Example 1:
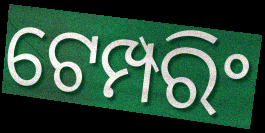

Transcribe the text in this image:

ଟେମ୍ପରିଂ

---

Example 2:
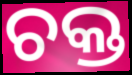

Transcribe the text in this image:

ଚକ୍ତ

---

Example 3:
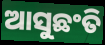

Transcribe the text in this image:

ଆସୁଛଂତି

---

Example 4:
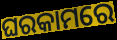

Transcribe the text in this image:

ଘରକାମରେ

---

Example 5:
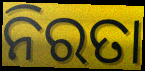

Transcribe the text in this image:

ନିରତା